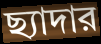
ছ্যাদার